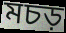
মচড়